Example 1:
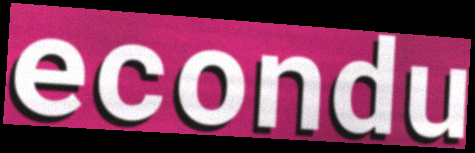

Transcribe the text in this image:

econdu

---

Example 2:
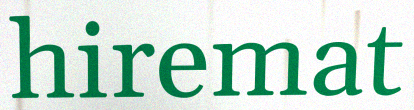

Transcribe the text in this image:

hiremat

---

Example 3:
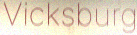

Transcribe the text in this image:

Vicksburg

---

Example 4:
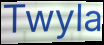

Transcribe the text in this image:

Twyla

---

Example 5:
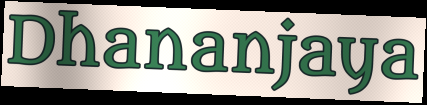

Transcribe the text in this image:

Dhananjaya